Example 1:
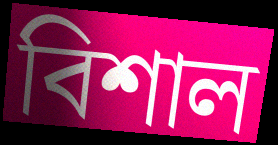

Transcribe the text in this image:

বিশাল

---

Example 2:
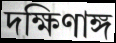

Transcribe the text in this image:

দক্ষিণাঙ্গ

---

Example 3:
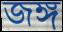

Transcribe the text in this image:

জঙ্গ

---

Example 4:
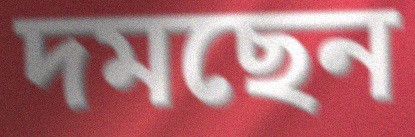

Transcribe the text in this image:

দমছেন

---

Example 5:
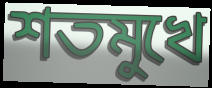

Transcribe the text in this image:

শতমুখে